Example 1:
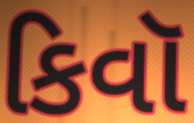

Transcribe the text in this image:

કિવૉ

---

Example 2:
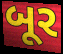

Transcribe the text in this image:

બૂર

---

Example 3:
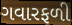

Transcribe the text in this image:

ગવારફળી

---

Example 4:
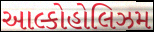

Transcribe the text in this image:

આલ્કોહોલિઝમ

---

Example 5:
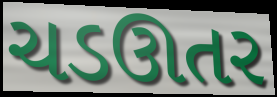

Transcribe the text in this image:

ચડઊતર